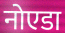
नोएडा